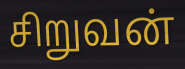
சிறுவன்